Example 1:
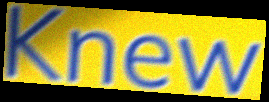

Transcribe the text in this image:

Knew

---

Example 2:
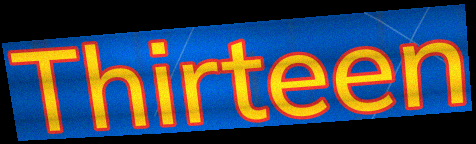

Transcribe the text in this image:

Thirteen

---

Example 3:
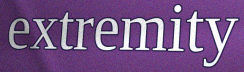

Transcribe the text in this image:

extremity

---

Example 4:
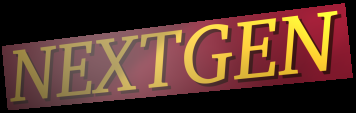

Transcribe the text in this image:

NEXTGEN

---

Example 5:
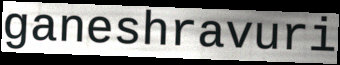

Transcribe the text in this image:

ganeshravuri